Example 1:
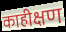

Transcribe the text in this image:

काहीक्षण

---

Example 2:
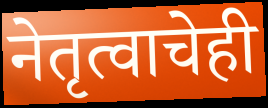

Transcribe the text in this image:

नेतृत्वाचेही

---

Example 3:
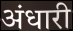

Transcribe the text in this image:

अंधारी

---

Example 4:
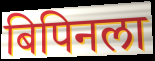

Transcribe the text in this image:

बिपिनला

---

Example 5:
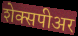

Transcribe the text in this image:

शेक्सपीअर